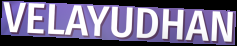
VELAYUDHAN